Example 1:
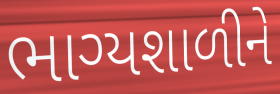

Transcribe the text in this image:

ભાગ્યશાળીને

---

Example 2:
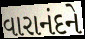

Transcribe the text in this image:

વારાનંદને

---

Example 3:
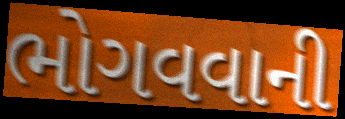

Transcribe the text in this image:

ભોગવવાની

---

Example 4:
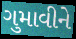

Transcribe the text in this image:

ગુમાવીને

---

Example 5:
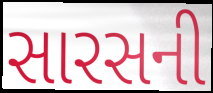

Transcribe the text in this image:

સારસની